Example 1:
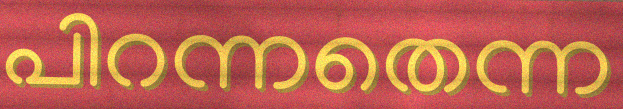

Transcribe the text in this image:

പിറന്നതെന്ന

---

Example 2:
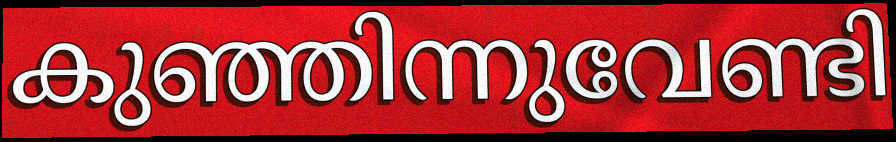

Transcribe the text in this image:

കുഞ്ഞിന്നുവേണ്ടി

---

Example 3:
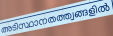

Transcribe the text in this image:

അടിസ്ഥാനതത്ത്വങ്ങളിൽ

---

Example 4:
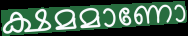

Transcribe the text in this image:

ക്ഷമമാണോ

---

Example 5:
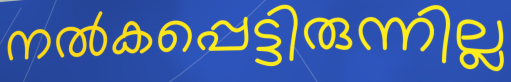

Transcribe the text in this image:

നൽകപ്പെട്ടിരുന്നില്ല